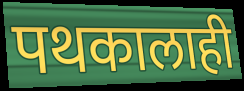
पथकालाही